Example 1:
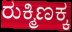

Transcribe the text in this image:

ರುಕ್ಮಿಣಕ್ಕ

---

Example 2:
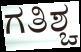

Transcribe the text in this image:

ಗತಿಶ್ಚ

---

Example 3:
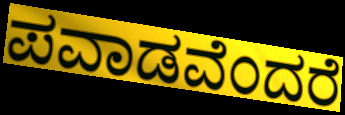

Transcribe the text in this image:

ಪವಾಡವೆಂದರೆ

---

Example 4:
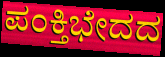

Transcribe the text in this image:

ಪಂಕ್ತಿಭೇದದ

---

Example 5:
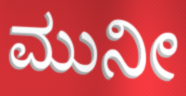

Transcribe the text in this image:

ಮುನೀ